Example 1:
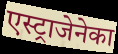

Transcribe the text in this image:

एस्ट्राजेनेका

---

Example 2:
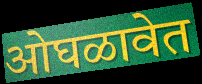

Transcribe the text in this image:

ओघळावेत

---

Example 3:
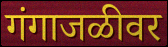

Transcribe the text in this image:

गंगाजळीवर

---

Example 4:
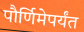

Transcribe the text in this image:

पौर्णिमेपर्यंत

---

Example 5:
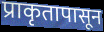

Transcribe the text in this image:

प्राकृतापासून